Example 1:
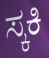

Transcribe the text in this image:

ಸ್ಕಕಿ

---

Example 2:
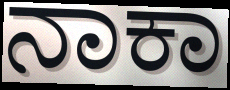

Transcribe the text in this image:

ನಾಕಾ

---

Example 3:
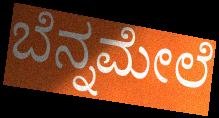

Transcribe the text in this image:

ಬೆನ್ನಮೇಲೆ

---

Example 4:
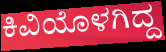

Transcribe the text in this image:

ಕಿವಿಯೊಳಗಿದ್ದ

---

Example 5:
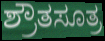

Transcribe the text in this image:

ಶ್ರೌತಸೂತ್ರ